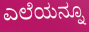
ಎಲೆಯನ್ನೂ